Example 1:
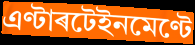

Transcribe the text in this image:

এণ্টাৰটেইনমেণ্টে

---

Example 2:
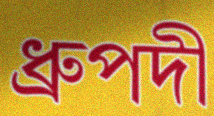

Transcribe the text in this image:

ধ্ৰুপদী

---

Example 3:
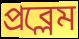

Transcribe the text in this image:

প্ৰব্লেম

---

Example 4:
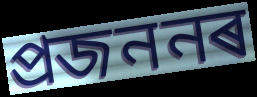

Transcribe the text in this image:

প্ৰজননৰ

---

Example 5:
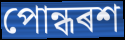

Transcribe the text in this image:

পোন্ধৰশ